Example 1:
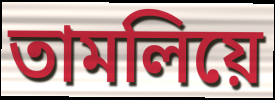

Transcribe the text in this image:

তামলিয়ে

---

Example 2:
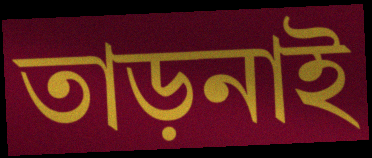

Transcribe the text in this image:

তাড়নাই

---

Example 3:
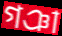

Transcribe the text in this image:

গঞা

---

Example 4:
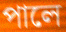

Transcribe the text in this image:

পালে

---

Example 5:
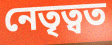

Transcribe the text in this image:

নেতৃত্বত